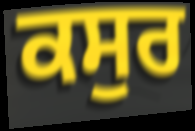
ਕਸੁਰ